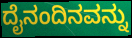
ದೈನಂದಿನವನ್ನು